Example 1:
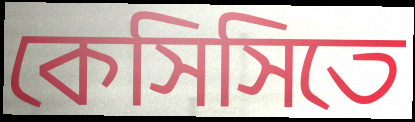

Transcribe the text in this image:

কেসিসিতে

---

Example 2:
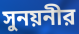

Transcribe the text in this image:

সুনয়নীর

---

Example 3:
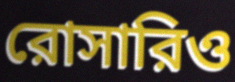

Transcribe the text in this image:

রোসারিও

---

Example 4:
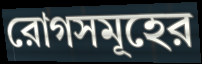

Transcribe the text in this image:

রোগসমূহের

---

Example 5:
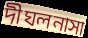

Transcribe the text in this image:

দীঘলনাসা